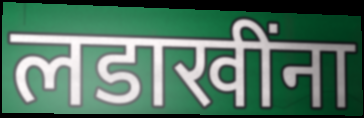
लडाखींना